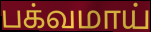
பக்வமாய்